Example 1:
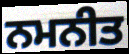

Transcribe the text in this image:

ਨਮਨੀਤ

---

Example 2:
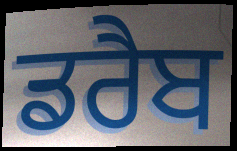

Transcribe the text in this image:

ਡਰੈਬ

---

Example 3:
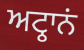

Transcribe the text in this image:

ਅਟ੍ਠਾਨਂ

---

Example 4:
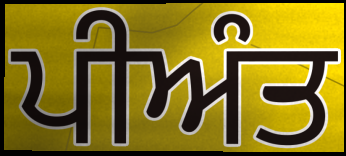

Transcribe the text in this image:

ਪੀਅੰਤ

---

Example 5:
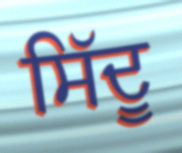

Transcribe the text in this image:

ਸਿੱਦੂ